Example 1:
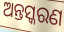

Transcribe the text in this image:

ଅନ୍ତସ୍କରଣ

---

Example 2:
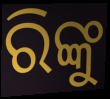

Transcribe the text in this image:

ରିଙ୍କୁ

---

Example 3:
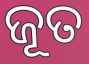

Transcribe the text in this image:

ଜୂତ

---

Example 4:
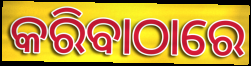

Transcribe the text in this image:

କରିବାଠାରେ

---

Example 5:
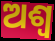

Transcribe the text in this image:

ଅଶ୍ବ